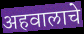
अहवालाचे